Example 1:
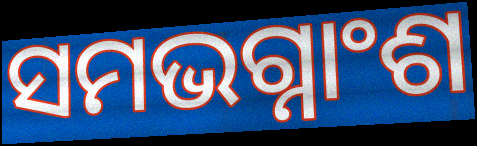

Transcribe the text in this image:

ସମଭଗ୍ନାଂଶ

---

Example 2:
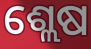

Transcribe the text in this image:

ଶ୍ଲେଷ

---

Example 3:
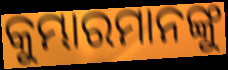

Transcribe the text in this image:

କୁମ୍ଭାରମାନଙ୍କୁ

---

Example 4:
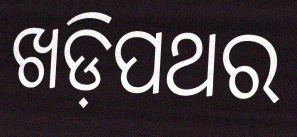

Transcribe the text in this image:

ଖଡ଼ିପଥର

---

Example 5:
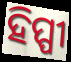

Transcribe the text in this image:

ହିପ୍ପୀ